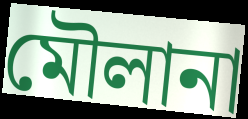
মৌলানা